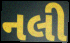
નલી